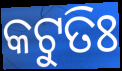
କଟୁତିଃ